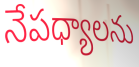
నేపధ్యాలను